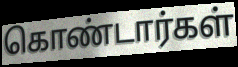
கொண்டார்கள்